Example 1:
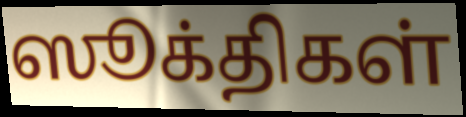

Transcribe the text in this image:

ஸூக்திகள்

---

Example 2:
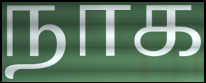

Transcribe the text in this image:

நாக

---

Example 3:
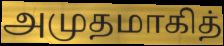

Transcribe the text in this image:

அமுதமாகித்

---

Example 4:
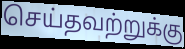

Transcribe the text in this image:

செய்தவற்றுக்கு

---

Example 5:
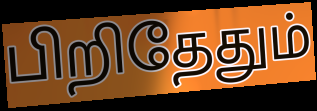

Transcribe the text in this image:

பிறிதேதும்